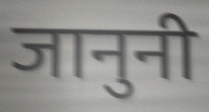
जानुनी